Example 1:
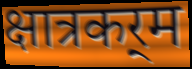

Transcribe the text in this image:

क्षात्रकर्म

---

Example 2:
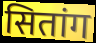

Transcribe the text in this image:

सितांग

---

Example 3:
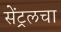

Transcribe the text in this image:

सेंट्रलचा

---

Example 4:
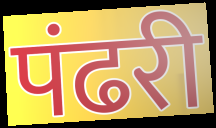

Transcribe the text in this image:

पंढरी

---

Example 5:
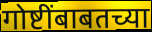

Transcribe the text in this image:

गोष्टींबाबतच्या